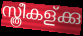
സ്ത്രീകള്ക്കു